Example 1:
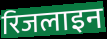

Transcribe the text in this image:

रिजलाइन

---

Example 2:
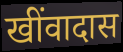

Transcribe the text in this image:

खींवादास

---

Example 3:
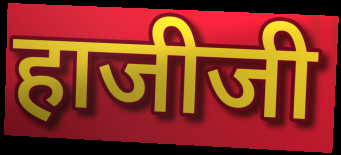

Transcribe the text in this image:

हाजीजी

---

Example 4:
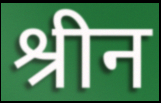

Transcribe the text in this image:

श्रीन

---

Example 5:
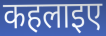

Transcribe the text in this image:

कहलाइए